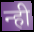
न्ही